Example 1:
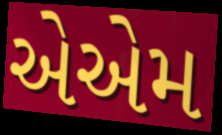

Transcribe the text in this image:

એએમ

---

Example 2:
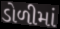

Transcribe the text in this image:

ડોળીમાં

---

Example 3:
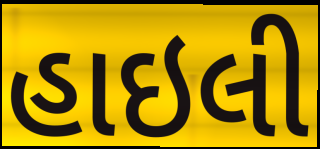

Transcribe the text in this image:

હાઇલી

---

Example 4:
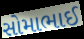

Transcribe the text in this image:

સોમાભાઈ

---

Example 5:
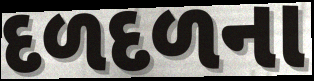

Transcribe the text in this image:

દળદળના